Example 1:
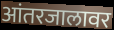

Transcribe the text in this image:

आंतरजालावर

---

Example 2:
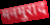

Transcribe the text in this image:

मनमुराद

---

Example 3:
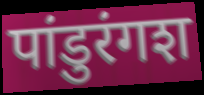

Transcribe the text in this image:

पांडुरंगश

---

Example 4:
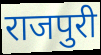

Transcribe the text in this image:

राजपुरी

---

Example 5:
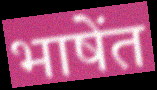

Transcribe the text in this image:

भाषेंत